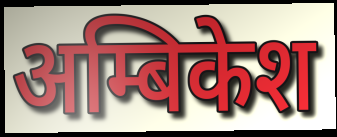
अम्बिकेश